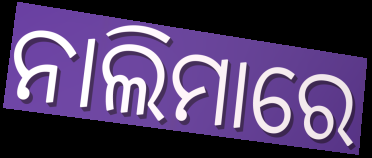
ନାଲିମାରେ